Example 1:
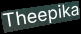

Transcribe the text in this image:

Theepika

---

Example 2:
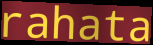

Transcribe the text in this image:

rahata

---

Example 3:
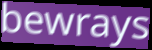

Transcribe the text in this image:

bewrays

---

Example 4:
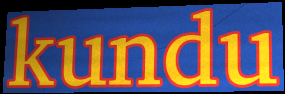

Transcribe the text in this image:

kundu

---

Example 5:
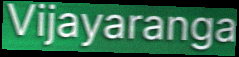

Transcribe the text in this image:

Vijayaranga